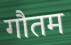
गौतम